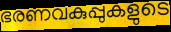
ഭരണവകുപ്പുകളുടെ